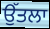
ਉੱਤਲਾ